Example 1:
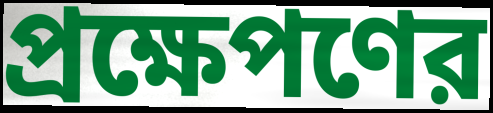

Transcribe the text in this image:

প্রক্ষেপণের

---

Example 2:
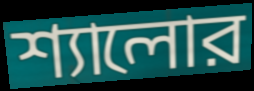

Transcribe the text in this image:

শ্যালোর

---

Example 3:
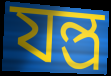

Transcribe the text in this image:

যন্ত্র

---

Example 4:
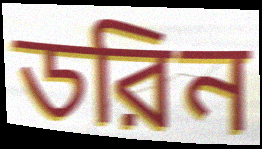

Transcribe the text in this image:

ডরিন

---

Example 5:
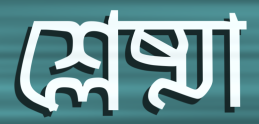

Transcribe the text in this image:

শ্লেষ্মা